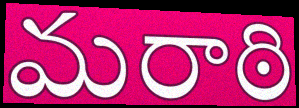
మరాఠి